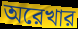
অরেখার